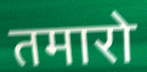
तमारो